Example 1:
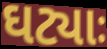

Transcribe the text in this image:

ઘટ્યાઃ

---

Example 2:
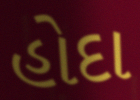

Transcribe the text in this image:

હોદા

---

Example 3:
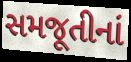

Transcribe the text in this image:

સમજૂતીનાં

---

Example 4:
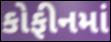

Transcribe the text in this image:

કોફીનમાં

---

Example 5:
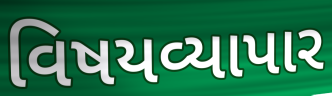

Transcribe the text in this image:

વિષયવ્યાપાર